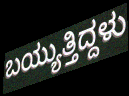
ಬಯ್ಯುತ್ತಿದ್ದಳು